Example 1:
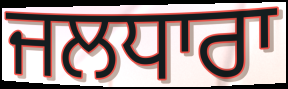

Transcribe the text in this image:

ਜਲਧਾਰਾ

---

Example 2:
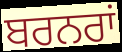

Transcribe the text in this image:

ਬਰਨਰਾਂ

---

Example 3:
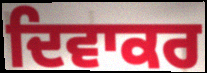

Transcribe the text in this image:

ਦਿਵਾਕਰ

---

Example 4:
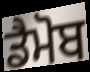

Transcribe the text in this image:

ਡੈਮੋਬ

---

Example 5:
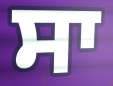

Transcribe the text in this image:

ਸਾ